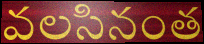
వలసినంత